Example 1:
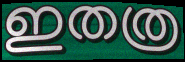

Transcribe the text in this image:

ഇതത്ര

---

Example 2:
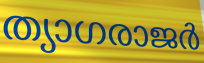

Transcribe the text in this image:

ത്യാഗരാജർ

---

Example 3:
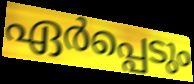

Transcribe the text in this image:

ഏർപ്പെടും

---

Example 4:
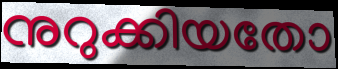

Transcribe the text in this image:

നുറുക്കിയതോ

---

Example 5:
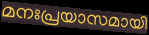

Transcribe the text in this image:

മനഃപ്രയാസമായി